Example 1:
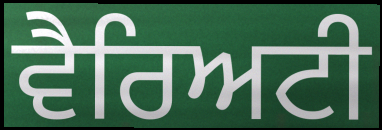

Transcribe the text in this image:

ਵੈਰਿਅਟੀ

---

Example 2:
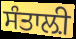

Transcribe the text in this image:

ਸੰਤਾਲ਼ੀ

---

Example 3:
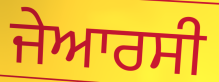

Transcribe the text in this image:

ਜੇਆਰਸੀ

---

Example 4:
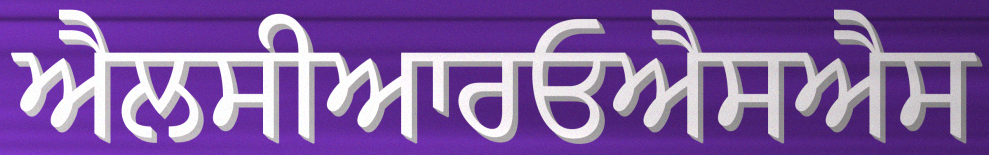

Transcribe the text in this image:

ਐਲਸੀਆਰਓਐਸਐਸ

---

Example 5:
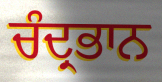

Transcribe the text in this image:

ਚੰਦ੍ਰਭਾਨ